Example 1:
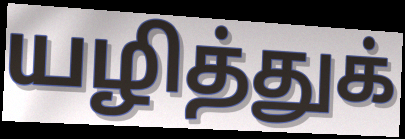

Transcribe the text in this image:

யழித்துக்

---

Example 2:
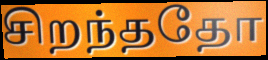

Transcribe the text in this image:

சிறந்ததோ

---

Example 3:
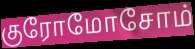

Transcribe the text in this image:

குரோமோசோம்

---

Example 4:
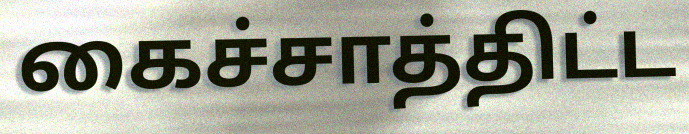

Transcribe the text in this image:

கைச்சாத்திட்ட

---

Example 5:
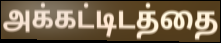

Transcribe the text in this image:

அக்கட்டிடத்தை